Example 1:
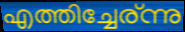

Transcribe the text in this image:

എത്തിച്ചേര്ന്നു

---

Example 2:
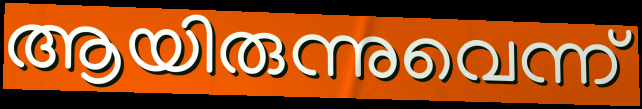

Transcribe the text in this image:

ആയിരുന്നുവെന്ന്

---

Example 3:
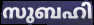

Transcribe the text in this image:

സുബഹി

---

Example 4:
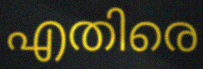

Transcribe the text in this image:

എതിരെ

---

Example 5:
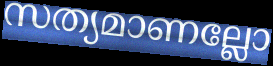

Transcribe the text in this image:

സത്യമാണല്ലോ